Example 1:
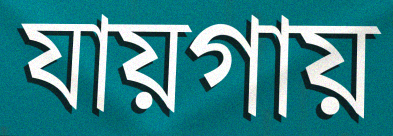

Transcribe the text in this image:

যায়গায়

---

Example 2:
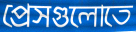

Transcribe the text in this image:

প্রেসগুলোতে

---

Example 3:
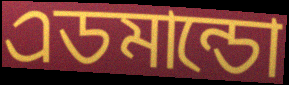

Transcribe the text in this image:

এডমান্ডো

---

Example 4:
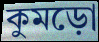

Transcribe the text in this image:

কুমড়ো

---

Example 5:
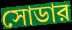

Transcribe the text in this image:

সোডার